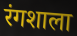
रंगशाला